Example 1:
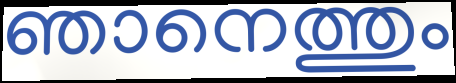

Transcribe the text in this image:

ഞാനെത്തും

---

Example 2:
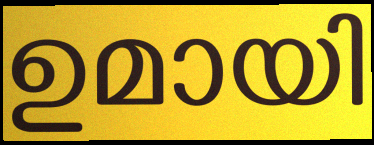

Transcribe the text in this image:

ഉമായി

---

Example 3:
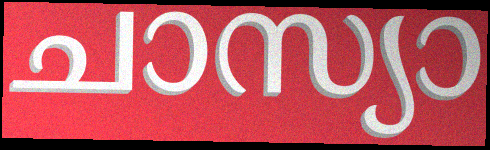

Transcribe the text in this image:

ചാസ്യാ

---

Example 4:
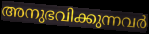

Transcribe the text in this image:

അനുഭവിക്കുന്നവർ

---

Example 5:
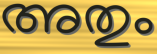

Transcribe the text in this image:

അതും